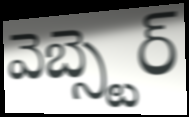
వెబ్స్టెర్